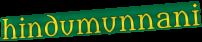
hindumunnani